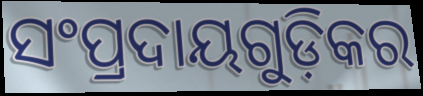
ସଂପ୍ରଦାୟଗୁଡ଼ିକର